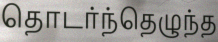
தொடர்ந்தெழுந்த